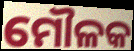
ମୌଳକ